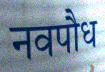
नवपौध